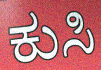
ಕುಸಿ